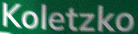
Koletzko